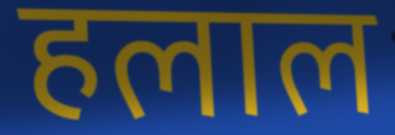
हलाल